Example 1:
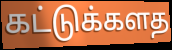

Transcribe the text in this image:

கட்டுக்களத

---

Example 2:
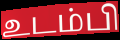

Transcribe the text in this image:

உடம்பி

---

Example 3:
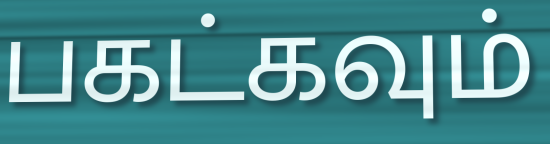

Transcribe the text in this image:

பகட்கவும்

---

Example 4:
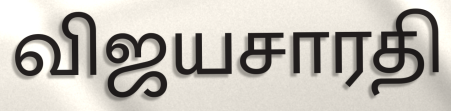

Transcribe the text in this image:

விஜயசாரதி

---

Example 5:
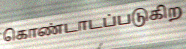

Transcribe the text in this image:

கொண்டாடப்படுகிற